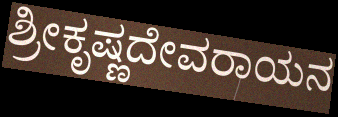
ಶ್ರೀಕೃಷ್ಣದೇವರಾಯನ